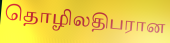
தொழிலதிபரான